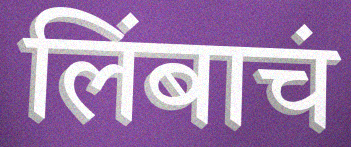
लिंबाचं